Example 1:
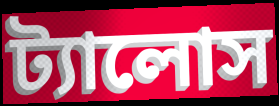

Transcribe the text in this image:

ট্যালোস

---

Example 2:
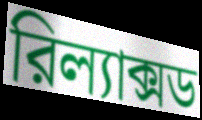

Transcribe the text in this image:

রিল্যাক্সড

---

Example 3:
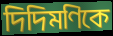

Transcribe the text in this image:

দিদিমণিকে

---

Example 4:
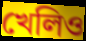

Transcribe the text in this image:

খেলিও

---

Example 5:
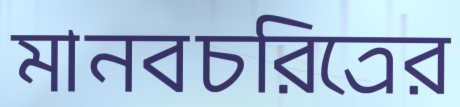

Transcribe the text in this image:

মানবচরিত্রের